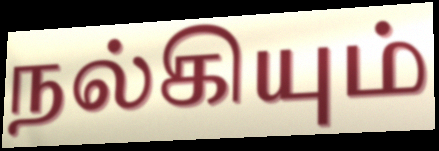
நல்கியும்